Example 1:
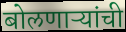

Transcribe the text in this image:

बोलणाऱ्यांची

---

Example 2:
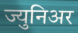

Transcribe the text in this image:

ज्युनिअर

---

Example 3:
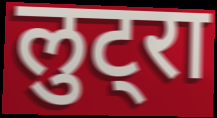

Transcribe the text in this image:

लुट्रा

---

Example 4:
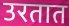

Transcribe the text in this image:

उरतात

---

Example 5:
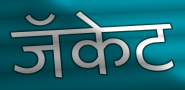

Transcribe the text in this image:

जॅकेट